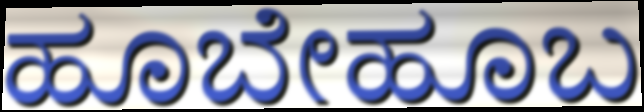
ಹೂಬೇಹೂಬ